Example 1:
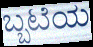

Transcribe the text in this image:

ಬ್ಬಟೆಯ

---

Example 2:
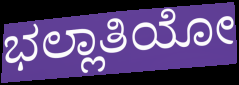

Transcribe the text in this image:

ಭಲ್ಲಾತಿಯೋ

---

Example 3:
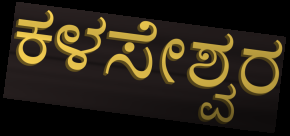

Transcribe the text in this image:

ಕಳಸೇಶ್ವರ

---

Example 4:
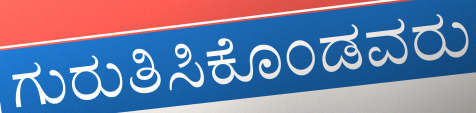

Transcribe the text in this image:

ಗುರುತಿಸಿಕೊಂಡವರು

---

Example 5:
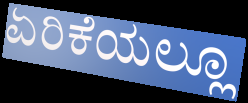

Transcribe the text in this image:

ಏರಿಕೆಯಲ್ಲೂ